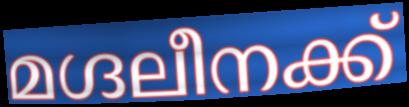
മഗ്ദലീനക്ക്